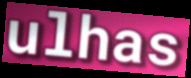
ulhas